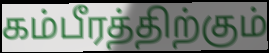
கம்பீரத்திற்கும்